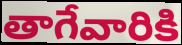
తాగేవారికి